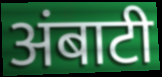
अंबाटी